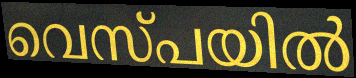
വെസ്പയിൽ